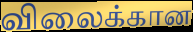
விலைக்கான